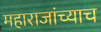
महाराजांच्याच